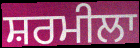
ਸ਼ਰਮੀਲਾ